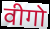
वीगो